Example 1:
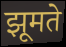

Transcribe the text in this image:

झूमते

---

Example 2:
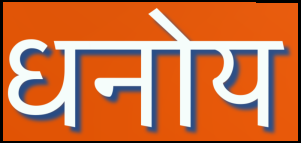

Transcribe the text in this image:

धनोय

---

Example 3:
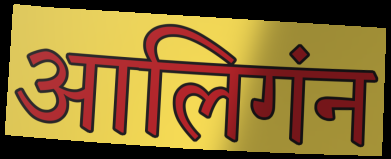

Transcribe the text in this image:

आलिगंन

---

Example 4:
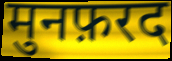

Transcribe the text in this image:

मुनफ़रद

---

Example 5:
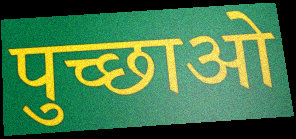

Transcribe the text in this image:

पुच्छाओ